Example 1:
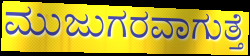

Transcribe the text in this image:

ಮುಜುಗರವಾಗುತ್ತೆ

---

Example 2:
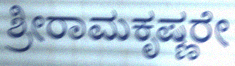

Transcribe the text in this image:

ಶ್ರೀರಾಮಕೃಷ್ಣರೇ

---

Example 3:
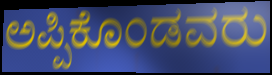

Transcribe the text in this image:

ಅಪ್ಪಿಕೊಂಡವರು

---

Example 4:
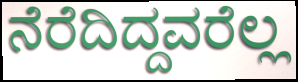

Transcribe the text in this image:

ನೆರೆದಿದ್ದವರೆಲ್ಲ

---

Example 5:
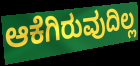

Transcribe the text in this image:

ಆಕೆಗಿರುವುದಿಲ್ಲ